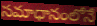
సమాధానంలోనే